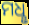
ମଧୢ